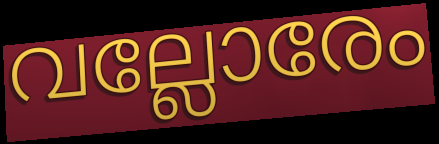
വല്ലോരേം